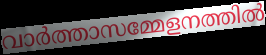
വാർത്താസമ്മേളനത്തിൽ